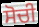
ਸੋਚੀ